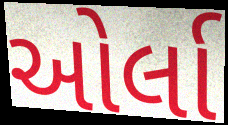
ઓર્લા